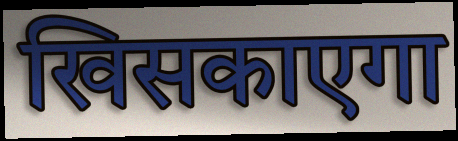
खिसकाएगा